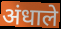
अंधाले